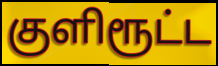
குளிரூட்ட